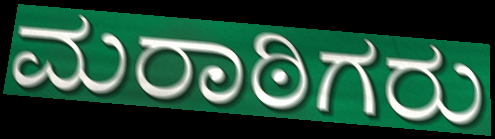
ಮರಾಠಿಗರು